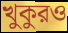
খুকুরও